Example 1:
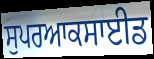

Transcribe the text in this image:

ਸੁਪਰਆਕਸਾਈਡ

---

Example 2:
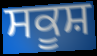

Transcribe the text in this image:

ਸਕੂਸ਼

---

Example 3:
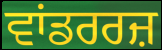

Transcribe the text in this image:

ਵਾਂਡਰਰਜ਼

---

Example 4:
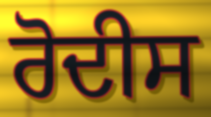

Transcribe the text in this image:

ਰੋਦੀਸ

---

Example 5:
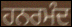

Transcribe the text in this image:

ਹਨਰਮੰਦ